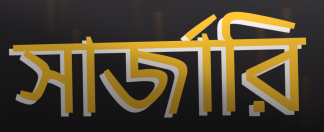
সার্জারি